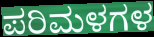
ಪರಿಮಳಗಳ